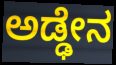
ಅಡ್ಢೇನ